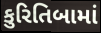
કુરિતિબામાં